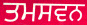
ਤਮਸਵਨ